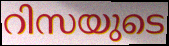
റിസയുടെ